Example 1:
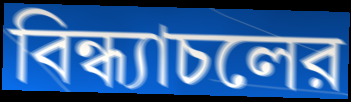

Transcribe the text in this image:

বিন্ধ্যাচলের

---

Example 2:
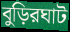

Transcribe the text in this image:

বুড়িরঘাট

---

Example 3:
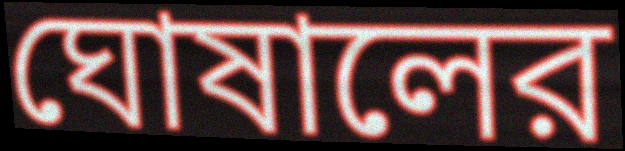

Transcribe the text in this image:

ঘোষালের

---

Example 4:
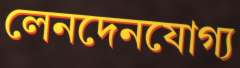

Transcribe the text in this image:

লেনদেনযোগ্য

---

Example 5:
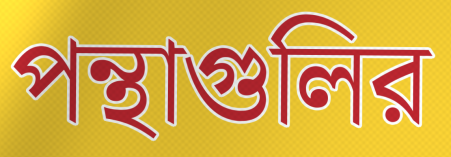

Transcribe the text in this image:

পন্থাগুলির